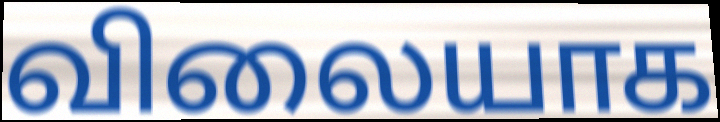
விலையாக